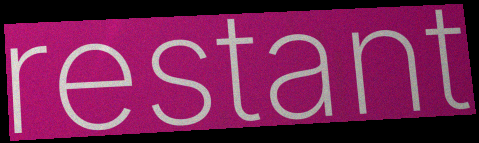
restant